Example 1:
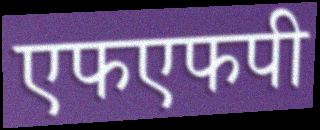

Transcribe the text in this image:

एफएफपी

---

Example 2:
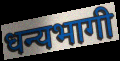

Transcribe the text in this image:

धन्यभागी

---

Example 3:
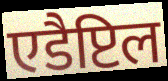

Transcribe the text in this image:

एडैप्टिल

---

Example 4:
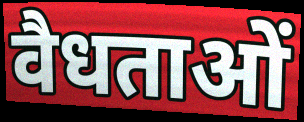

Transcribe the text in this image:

वैधताओं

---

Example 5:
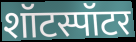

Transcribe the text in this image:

शॉटस्पॉटर